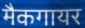
मैकगायर